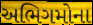
અભિગમોના